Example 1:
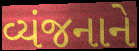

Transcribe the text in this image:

વ્યંજનાને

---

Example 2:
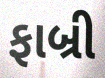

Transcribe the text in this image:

ફાબ્રી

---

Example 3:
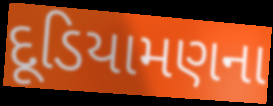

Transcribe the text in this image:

દૂડિયામણના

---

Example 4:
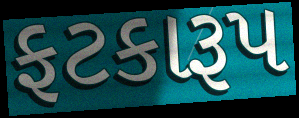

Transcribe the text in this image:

ફટકારૂપ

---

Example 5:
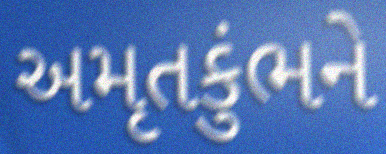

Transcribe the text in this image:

અમૃતકુંભને